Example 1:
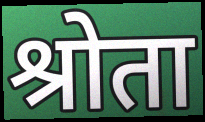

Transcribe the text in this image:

श्रोता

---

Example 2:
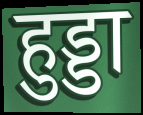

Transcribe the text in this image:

हुड्डा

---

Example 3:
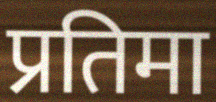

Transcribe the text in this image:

प्रतिमा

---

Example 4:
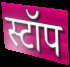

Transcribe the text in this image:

स्टॉप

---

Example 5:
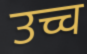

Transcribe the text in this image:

उच्च